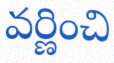
వర్ణించి